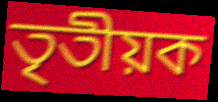
তৃতীয়ক